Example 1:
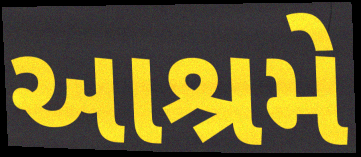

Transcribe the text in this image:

આશ્રમે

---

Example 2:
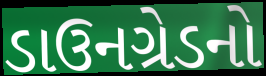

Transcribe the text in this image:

ડાઉનગ્રેડનો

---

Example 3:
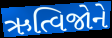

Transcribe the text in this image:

ઋત્વિજોને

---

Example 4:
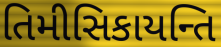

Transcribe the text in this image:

તિમીસિકાયન્તિ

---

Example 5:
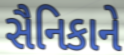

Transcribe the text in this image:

સૈનિકાને